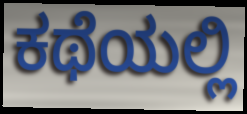
ಕಥೆಯಲ್ಲಿ